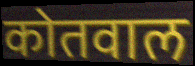
कोतवाल